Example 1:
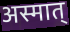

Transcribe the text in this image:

अस्मात्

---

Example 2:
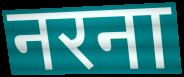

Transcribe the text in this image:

नरना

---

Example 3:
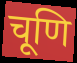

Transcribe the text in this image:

चूणि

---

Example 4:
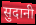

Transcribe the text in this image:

सुदानी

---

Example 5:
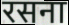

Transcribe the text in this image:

रसना